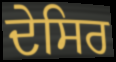
ਦੇਸਿਰ